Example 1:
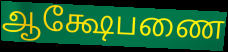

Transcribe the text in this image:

ஆக்ஷேபணை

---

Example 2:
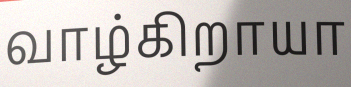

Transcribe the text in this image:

வாழ்கிறாயா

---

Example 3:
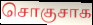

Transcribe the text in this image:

சொகுசாக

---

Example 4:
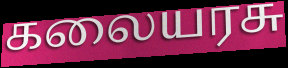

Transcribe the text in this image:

கலையரசு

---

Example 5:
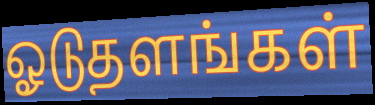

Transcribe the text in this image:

ஓடுதளங்கள்